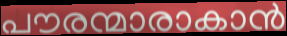
പൗരന്മാരാകാൻ